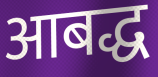
आबद्ध